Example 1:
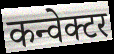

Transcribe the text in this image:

कन्वेक्टर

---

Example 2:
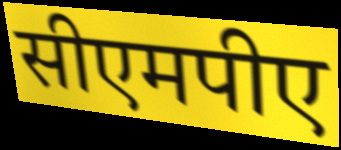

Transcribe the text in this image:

सीएमपीए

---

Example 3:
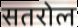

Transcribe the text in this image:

सतरोल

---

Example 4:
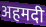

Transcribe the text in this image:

अहमदी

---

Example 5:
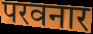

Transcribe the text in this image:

परवनार